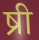
ष्री